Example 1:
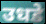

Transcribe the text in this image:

उधडे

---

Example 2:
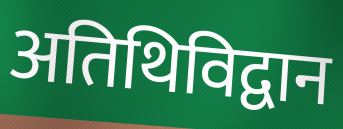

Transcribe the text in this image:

अतिथिविद्वान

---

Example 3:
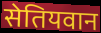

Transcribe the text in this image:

सेतियवान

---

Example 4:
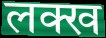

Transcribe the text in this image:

लक्ख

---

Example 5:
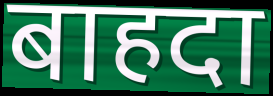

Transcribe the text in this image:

बाहदा